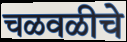
चळवळीचे